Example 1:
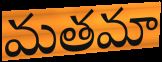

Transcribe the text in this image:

మతమా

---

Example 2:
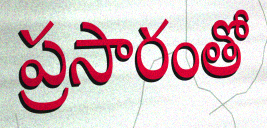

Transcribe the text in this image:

ప్రసారంతో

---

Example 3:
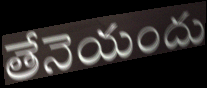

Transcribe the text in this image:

తేనెయందు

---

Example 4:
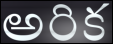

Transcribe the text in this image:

అరిక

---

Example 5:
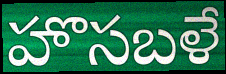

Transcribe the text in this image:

హొసబళే